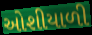
ઓશીયાળી